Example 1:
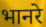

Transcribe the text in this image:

भानरे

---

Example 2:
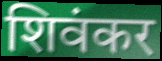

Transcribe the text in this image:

शिवंकर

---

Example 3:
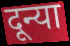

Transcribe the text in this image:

दून्या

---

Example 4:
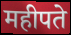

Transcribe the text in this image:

महीपते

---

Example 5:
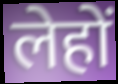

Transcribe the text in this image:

लेहों